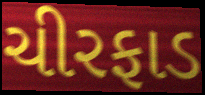
ચીરફાડ